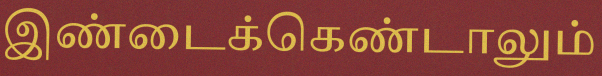
இண்டைக்கெண்டாலும்